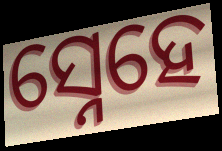
ସ୍ନେହେ